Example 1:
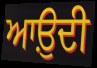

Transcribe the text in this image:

ਆਉ਼ਦੀ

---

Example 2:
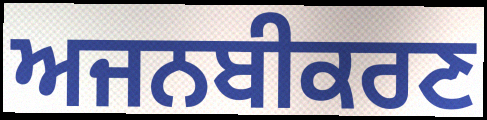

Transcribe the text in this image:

ਅਜਨਬੀਕਰਣ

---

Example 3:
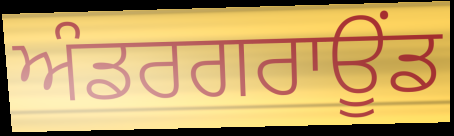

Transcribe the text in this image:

ਅੰਡਰਗਰਾਊਂਡ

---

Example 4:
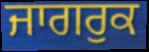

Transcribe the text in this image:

ਜਾਗਰੁਕ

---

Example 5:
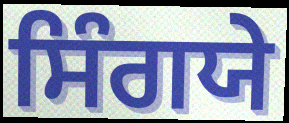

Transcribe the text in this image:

ਸਿੰਗਯੇ